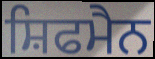
ਸ਼ਿਫਮੈਨ